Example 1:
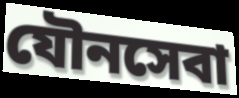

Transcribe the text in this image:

যৌনসেবা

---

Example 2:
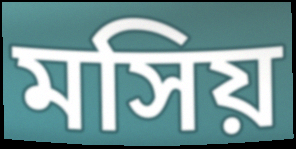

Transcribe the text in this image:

মসিয়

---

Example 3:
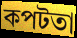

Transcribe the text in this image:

কপটতা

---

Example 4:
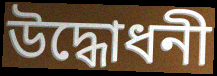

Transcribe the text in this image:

উদ্ধোধনী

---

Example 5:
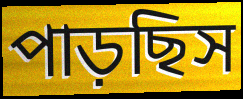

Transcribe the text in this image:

পাড়ছিস